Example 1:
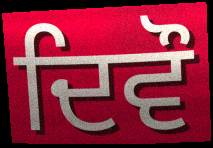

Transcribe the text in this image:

ਦਿਵੌ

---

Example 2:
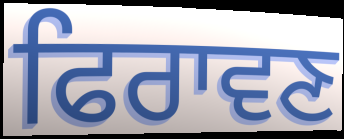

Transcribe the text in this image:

ਫਿਰਾਵਣ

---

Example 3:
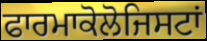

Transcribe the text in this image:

ਫਾਰਮਾਕੋਲੋਜਿਸਟਾਂ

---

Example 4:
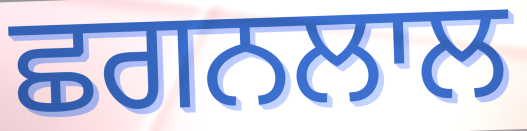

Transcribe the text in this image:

ਛਗਨਲਾਲ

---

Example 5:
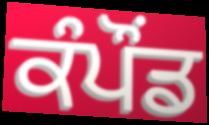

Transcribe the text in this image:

ਕੰਪੌਂਡ